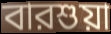
বারশুয়া